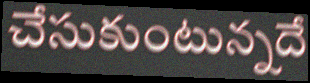
చేసుకుంటున్నదే